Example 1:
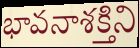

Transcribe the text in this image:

భావనాశక్తిని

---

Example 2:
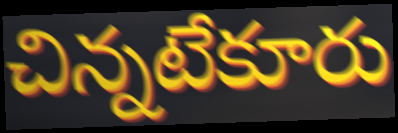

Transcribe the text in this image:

చిన్నటేకూరు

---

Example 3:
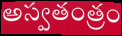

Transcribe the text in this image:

అస్వతంత్రం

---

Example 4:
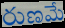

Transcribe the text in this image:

రుణమే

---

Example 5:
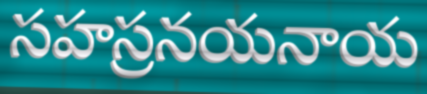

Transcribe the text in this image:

సహస్రనయనాయ